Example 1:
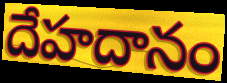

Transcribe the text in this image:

దేహదానం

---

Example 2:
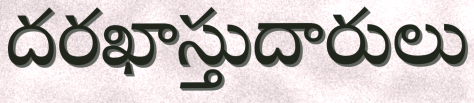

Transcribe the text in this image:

దరఖాస్తుదారులు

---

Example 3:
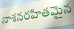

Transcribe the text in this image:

నాశనరహితమైన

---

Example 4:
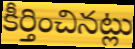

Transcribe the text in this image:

కీర్తించినట్లు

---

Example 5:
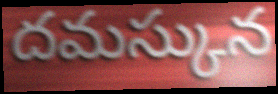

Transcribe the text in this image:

దమస్కున